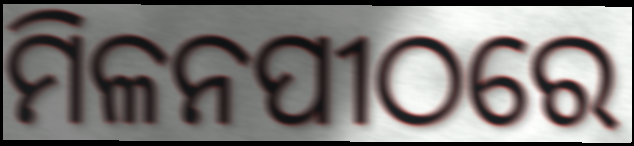
ମିଳନପୀଠରେ